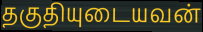
தகுதியுடையவன்